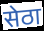
सेठा